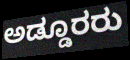
ಅಡ್ಡೂರರು